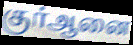
குர்ஆனை